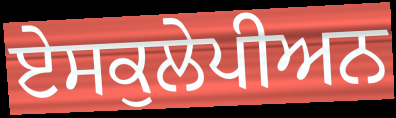
ਏਸਕੁਲੇਪੀਅਨ